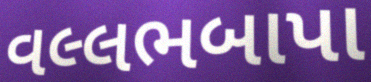
વલ્લભબાપા